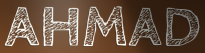
AHMAD